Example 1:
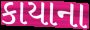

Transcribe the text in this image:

કાયાના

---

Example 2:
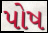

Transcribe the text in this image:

પોષ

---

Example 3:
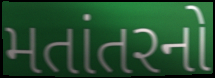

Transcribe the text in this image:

મતાંતરનો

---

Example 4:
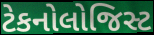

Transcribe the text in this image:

ટેકનોલોજિસ્ટ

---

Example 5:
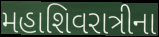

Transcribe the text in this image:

મહાશિવરાત્રીના